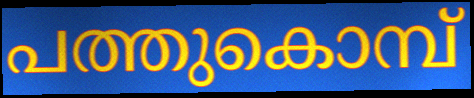
പത്തുകൊമ്പ്